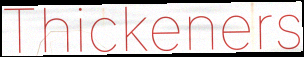
Thickeners